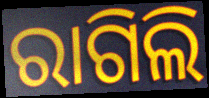
ରାଗିଲି